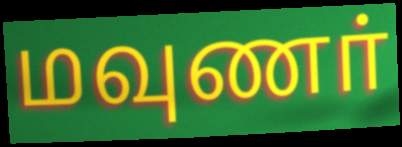
மவுணர்